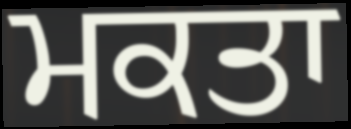
ਮਕਤਾ